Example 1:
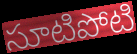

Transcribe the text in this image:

సూటిపోటి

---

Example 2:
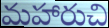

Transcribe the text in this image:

మహారుచి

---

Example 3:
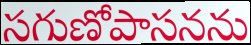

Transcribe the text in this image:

సగుణోపాసనను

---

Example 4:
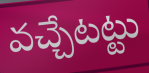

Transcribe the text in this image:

వచ్చేటట్టు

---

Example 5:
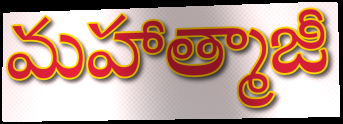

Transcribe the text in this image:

మహాత్మాజీ